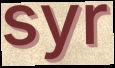
syr